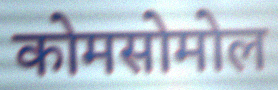
कोमसोमोल